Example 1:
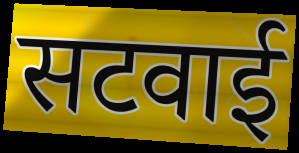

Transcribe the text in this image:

सटवाई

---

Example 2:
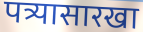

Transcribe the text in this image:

पत्र्यासारखा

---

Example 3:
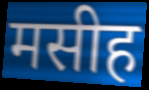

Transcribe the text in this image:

मसीह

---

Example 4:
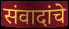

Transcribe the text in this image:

संवादांचे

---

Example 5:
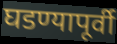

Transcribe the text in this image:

घडण्यापूर्वी